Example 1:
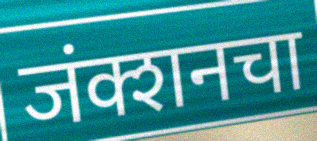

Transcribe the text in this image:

जंक्‍शनचा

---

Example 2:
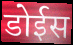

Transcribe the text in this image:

डोईस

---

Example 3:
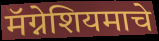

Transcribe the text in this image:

मॅग्नेशियमाचे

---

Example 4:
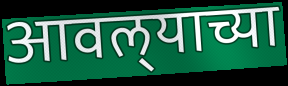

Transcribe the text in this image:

आवल्याच्या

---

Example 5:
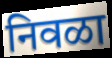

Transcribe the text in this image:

निवळा